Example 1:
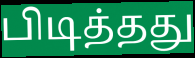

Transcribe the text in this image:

பிடித்தது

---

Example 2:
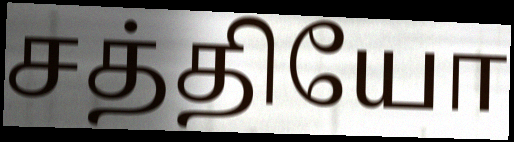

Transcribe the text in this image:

சத்தியோ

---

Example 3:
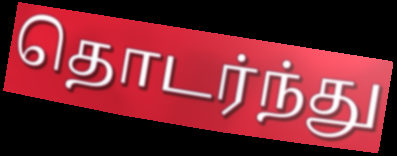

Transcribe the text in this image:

தொடர்ந்து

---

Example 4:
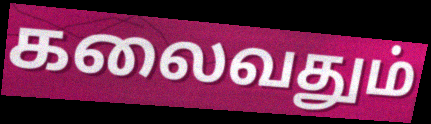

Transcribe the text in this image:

கலைவதும்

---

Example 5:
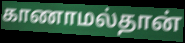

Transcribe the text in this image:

காணாமல்தான்